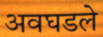
अवघडले